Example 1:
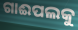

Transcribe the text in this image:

ଗାଈପଲକୁ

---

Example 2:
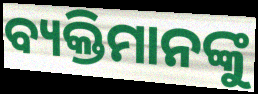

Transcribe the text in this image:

ବ୍ୟକ୍ତିମାନଙ୍କୁ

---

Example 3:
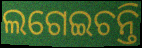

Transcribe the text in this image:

ଲଗେଇଚନ୍ତି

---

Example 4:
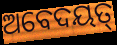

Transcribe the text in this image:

ଅବେଦୟତ୍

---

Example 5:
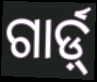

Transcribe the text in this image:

ଗାର୍ଡ଼୍